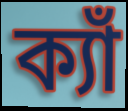
ক্যাঁ